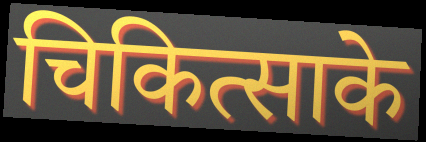
चिकित्साके